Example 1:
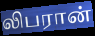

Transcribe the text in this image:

லிபரான்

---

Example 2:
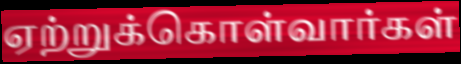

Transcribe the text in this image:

ஏற்றுக்கொள்வார்கள்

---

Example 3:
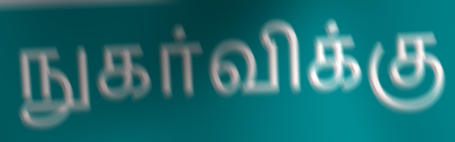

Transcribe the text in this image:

நுகர்விக்கு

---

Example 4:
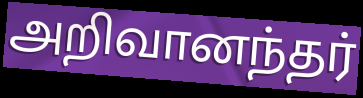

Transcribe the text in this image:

அறிவானந்தர்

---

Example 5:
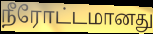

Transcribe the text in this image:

நீரோட்டமானது